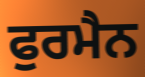
ਫੁਰਮੈਨ